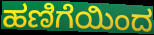
ಹಣಿಗೆಯಿಂದ